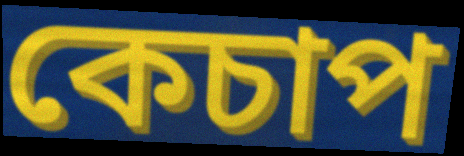
কেচাপ